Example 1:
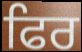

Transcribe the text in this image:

ਫਿਰ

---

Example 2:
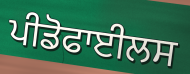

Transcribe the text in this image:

ਪੀਡੋਫਾਈਲਸ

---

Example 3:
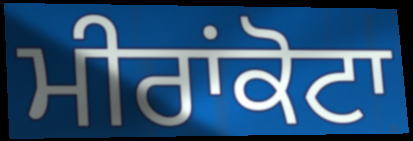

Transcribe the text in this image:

ਮੀਰਾਂਕੋਟਾ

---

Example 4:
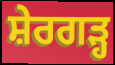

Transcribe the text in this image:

ਸ਼ੇਰਗੜ੍ਹ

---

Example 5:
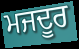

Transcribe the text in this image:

ਮਜਦੂਰ